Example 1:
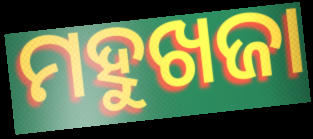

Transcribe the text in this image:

ମହୁଖଜା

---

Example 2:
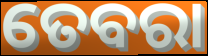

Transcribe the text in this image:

ତେବରା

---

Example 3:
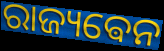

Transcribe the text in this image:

ରାଜ୍ୟଵେନ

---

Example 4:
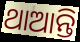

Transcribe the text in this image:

ଥାଆନ୍ତି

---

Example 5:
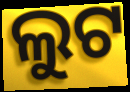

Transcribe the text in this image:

ଲୁଟ